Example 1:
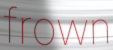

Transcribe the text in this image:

frown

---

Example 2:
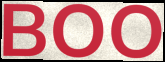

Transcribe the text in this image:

BOO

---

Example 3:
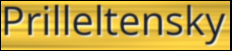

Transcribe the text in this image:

Prilleltensky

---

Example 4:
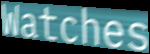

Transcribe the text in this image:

Watches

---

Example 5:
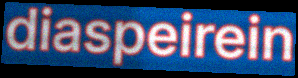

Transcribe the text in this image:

diaspeirein